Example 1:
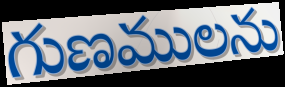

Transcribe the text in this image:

గుణములను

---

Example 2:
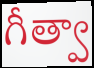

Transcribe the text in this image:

గీత్వా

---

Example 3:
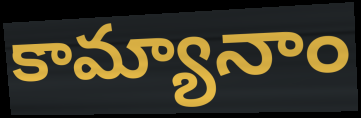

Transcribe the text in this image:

కామ్యానాం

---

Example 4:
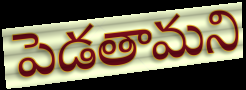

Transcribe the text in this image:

పెడతామని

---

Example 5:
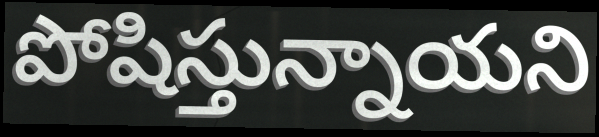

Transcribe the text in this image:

పోషిస్తున్నాయని